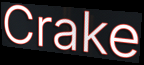
Crake